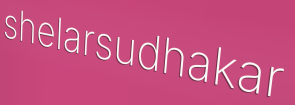
shelarsudhakar